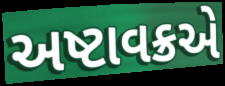
અષ્ટાવક્રએ